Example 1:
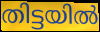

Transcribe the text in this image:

തിട്ടയിൽ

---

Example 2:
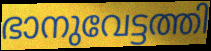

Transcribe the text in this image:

ഭാനുവേട്ടത്തി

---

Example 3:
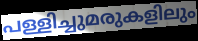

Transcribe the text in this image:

പള്ളിച്ചുമരുകളിലും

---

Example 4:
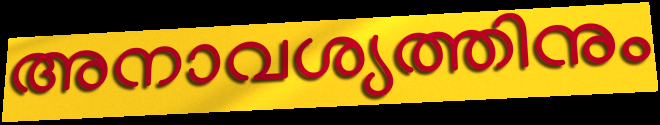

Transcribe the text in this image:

അനാവശ്യത്തിനും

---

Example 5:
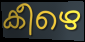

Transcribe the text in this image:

കീഴെ